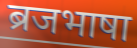
ब्रजभाषा